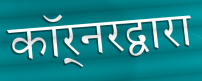
कॉर्नरद्वारा